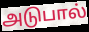
அடுபால்